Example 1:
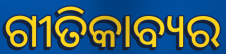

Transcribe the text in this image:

ଗୀତିକାବ୍ୟର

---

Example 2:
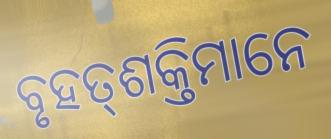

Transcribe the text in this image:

ବୃହତ୍‌ଶକ୍ତିମାନେ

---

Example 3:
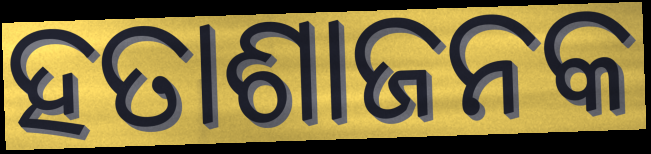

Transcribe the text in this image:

ହତାଶାଜନକ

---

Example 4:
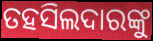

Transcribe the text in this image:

ତହସିଲଦାରଙ୍କୁ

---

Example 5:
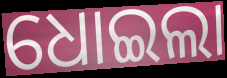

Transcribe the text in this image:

ଧୋଇଲା